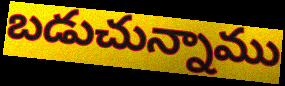
బడుచున్నాము